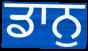
ਡਾਨੁ